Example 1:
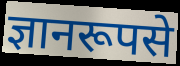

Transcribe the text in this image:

ज्ञानरूपसे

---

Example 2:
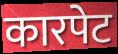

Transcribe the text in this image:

कारपेट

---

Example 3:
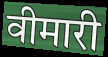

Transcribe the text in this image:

वीमारी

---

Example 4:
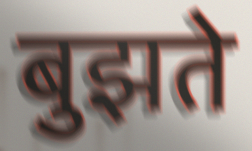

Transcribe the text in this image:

बुझते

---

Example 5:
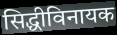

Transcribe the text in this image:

सिद्धीविनायक